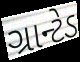
ગ્રાન્ટેડ